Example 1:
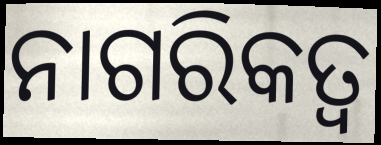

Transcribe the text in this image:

ନାଗରିକତ୍ୱ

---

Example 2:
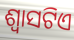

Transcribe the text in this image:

ଶ୍ଵାସଟିଏ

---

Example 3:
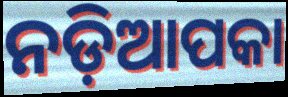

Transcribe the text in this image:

ନଡ଼ିଆପକା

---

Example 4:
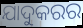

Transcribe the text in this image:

ଯାଦୁକରର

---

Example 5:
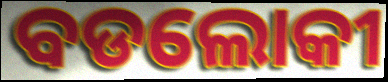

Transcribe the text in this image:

ବଡଲୋକୀ